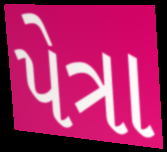
પેત્રા